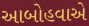
આબોહવાએ